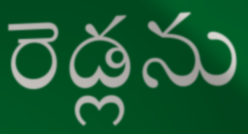
రెడ్లను